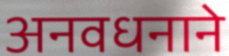
अनवधनाने